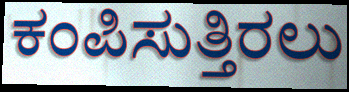
ಕಂಪಿಸುತ್ತಿರಲು